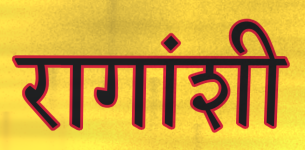
रागांशी